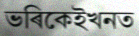
ভৰিকেইখনত